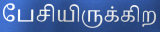
பேசியிருக்கிற